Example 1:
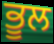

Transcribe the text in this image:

ਭੂਲ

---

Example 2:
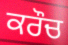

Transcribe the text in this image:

ਕਰੌਚ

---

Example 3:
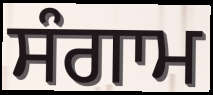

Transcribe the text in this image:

ਸੰਗਾਮ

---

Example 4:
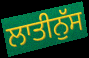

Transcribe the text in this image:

ਲਾਤੀਨੁੱਸ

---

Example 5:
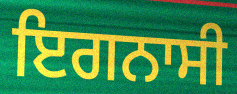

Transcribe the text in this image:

ਇਗਨਾਸੀ